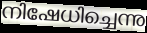
നിഷേധിച്ചെന്നു